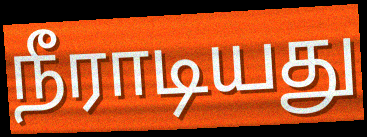
நீராடியது